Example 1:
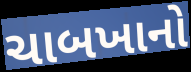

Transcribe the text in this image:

ચાબખાનો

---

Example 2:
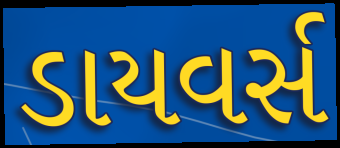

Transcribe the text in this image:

ડાયવર્સ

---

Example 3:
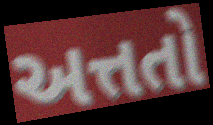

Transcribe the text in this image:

અત્તતો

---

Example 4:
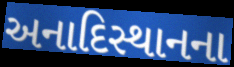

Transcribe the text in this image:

અનાદિસ્થાનના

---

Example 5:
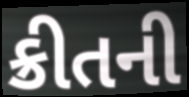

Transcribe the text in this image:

ક્રીતની